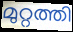
മുറ്റത്തി